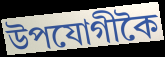
উপযোগীকৈ